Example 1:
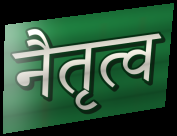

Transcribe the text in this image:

नैतृत्व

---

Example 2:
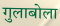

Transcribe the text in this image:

गुलाबोला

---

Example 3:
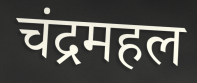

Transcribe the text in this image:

चंद्रमहल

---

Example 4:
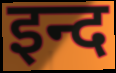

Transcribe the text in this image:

इन्द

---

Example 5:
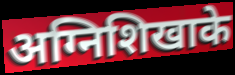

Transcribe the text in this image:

अग्निशिखाके